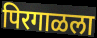
पिरगाळला